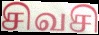
சிவசி